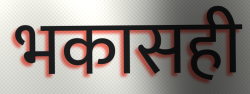
भकासही